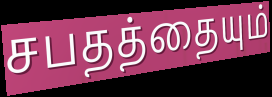
சபதத்தையும்